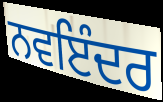
ਨਵਇੰਦਰ